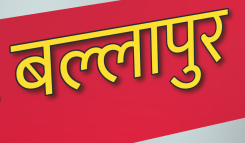
बल्लापुर